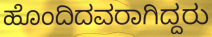
ಹೊಂದಿದವರಾಗಿದ್ದರು